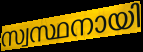
സ്വസ്ഥനായി